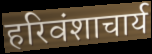
हरिवंशाचार्य